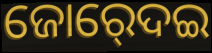
ଜୋର୍‍ଦେଇ